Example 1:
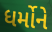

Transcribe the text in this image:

ધર્મોને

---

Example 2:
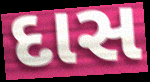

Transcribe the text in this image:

દાસ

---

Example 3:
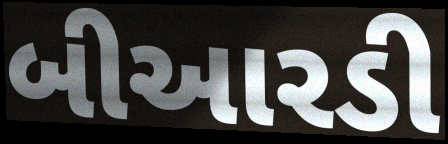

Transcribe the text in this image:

બીઆરડી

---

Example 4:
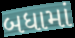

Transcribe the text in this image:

બધામાં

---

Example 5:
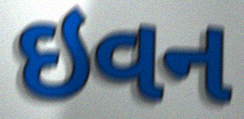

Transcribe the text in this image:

ઇવન